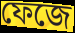
ফেজে